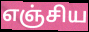
எஞ்சிய